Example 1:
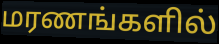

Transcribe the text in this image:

மரணங்களில்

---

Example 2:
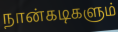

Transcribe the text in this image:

நான்கடிகளும்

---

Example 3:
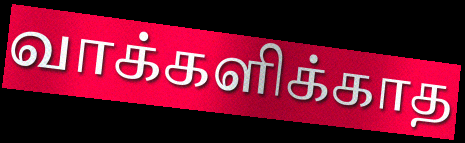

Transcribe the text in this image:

வாக்களிக்காத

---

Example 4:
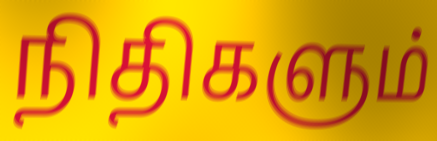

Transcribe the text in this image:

நிதிகளும்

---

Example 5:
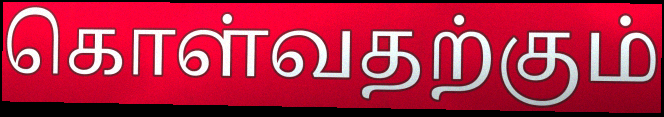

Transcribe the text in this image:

கொள்வதற்கும்